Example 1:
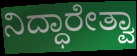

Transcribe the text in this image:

ನಿದ್ಧಾರೇತ್ವಾ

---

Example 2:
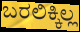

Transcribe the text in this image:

ಬರಲಿಕ್ಕಿಲ್ಲ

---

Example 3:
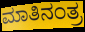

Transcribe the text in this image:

ಮಾತಿನಂತ್ರ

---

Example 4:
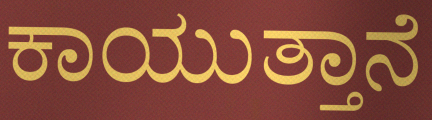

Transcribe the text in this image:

ಕಾಯುತ್ತಾನೆ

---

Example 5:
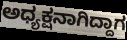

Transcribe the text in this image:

ಅಧ್ಯಕ್ಷನಾಗಿದ್ದಾಗ